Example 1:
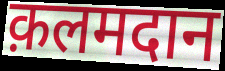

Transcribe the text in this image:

क़लमदान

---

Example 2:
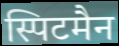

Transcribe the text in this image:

स्पिटमैन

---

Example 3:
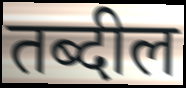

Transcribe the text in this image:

तब्दील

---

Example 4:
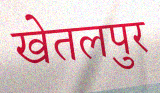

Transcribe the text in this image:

खेतलपुर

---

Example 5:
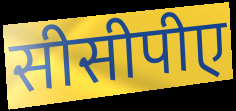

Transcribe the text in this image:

सीसीपीए